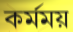
কর্মময়